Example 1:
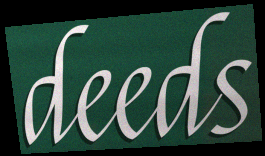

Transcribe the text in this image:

deeds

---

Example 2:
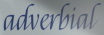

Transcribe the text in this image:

adverbial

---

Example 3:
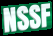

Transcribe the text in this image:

NSSF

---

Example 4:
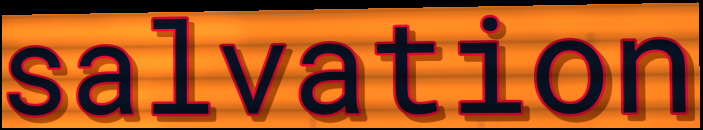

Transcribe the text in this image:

salvation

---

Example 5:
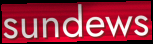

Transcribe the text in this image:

sundews